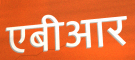
एबीआर